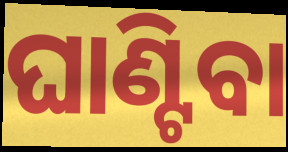
ଘାଣ୍ଟିବା